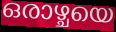
ഒരാഴ്ചയെ